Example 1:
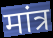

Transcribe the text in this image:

मांत्र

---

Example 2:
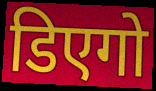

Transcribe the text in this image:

डिएगो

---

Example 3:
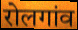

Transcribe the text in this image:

रोलगांव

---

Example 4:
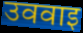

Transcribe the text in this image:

उववाइ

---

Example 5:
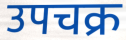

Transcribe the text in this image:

उपचक्र